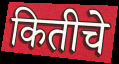
कितीचे